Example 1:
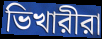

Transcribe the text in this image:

ভিখারীরা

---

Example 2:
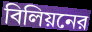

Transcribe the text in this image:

বিলিয়নের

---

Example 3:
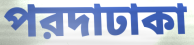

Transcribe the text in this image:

পরদাঢাকা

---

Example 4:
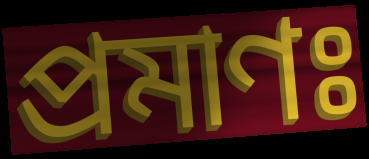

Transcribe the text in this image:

প্রমাণঃ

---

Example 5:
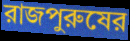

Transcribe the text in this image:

রাজপুরুষের